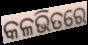
କଳଭିତରେ